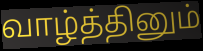
வாழ்த்தினும்